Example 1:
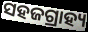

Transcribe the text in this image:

ସହଜଗ୍ରାହ୍ୟ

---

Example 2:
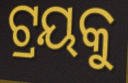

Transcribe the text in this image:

ଟ୍ରୟକୁ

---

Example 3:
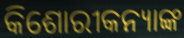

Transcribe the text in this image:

କିଶୋରୀକନ୍ୟାଙ୍କ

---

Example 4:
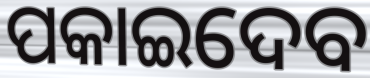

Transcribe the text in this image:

ପକାଇଦେବ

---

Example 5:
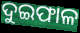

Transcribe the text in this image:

ଦୁଇଫାଳ